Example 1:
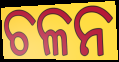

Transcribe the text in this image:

ଚଳନ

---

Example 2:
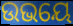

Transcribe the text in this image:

ଉଭୟେ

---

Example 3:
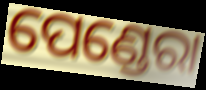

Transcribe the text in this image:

ପେଣ୍ଡେରା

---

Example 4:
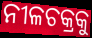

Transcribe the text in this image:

ନୀଳଚକ୍ରକୁ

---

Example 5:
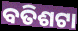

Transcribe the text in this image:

ବତିଶଟା